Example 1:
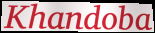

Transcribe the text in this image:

Khandoba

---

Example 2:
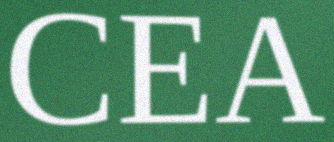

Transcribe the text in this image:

CEA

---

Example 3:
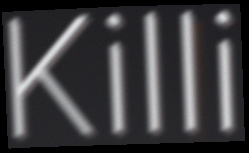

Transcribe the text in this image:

Killi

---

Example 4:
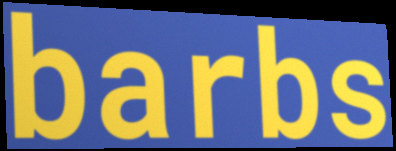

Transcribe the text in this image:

barbs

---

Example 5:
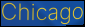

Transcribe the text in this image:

Chicago